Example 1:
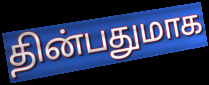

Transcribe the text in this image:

தின்பதுமாக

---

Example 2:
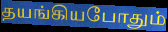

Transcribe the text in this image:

தயங்கியபோதும்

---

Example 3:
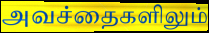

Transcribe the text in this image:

அவச்தைகளிலும்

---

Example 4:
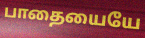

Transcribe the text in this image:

பாதையையே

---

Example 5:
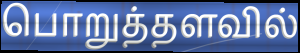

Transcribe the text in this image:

பொறுத்தளவில்